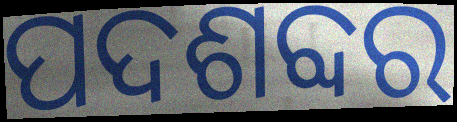
ପଦଶବ୍ଦର